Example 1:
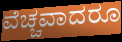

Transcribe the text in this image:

ವೆಚ್ಚವಾದರೂ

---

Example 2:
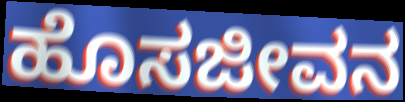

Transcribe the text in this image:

ಹೊಸಜೀವನ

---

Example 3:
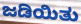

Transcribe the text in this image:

ಜಡಿಯಿತು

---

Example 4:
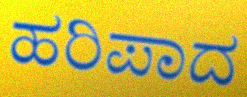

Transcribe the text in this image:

ಹರಿಪಾದ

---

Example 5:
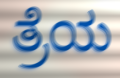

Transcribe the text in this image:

ತ್ರೆಯ